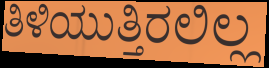
ತಿಳಿಯುತ್ತಿರಲಿಲ್ಲ